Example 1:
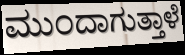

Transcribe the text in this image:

ಮುಂದಾಗುತ್ತಾಳೆ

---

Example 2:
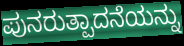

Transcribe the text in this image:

ಪುನರುತ್ಪಾದನೆಯನ್ನು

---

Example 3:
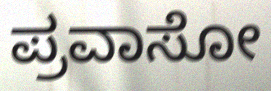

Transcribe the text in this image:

ಪ್ರವಾಸೋ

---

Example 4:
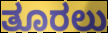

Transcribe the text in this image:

ತೂರಲು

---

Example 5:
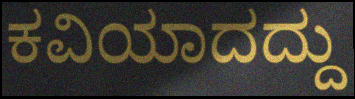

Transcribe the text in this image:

ಕವಿಯಾದದ್ದು